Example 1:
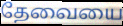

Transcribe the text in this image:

தேவையை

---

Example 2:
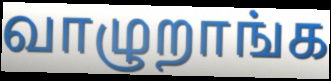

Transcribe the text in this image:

வாழுறாங்க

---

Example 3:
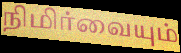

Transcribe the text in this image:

நிமிர்வையும்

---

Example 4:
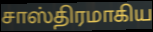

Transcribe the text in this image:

சாஸ்திரமாகிய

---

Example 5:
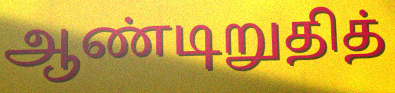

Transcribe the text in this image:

ஆண்டிறுதித்